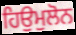
ਹਿਉਮੁਲੋਨ